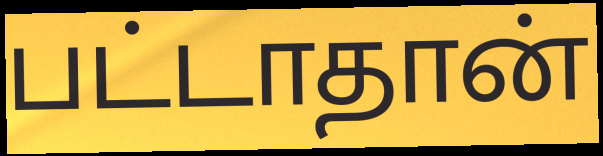
பட்டாதான்